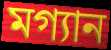
মগ্যান